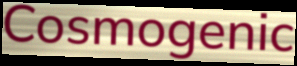
Cosmogenic